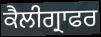
ਕੈਲੀਗ੍ਰਾਫਰ